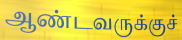
ஆண்டவருக்குச்